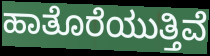
ಹಾತೊರೆಯುತ್ತಿವೆ